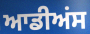
ਆਡੀਅਂਸ